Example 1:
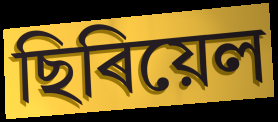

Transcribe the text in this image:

ছিৰিয়েল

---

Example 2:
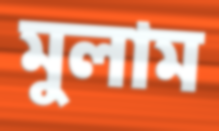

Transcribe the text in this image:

মুলাম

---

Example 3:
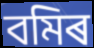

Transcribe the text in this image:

বমিৰ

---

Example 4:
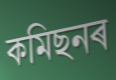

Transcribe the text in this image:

কমিছনৰ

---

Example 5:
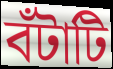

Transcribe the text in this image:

বঁটাটি